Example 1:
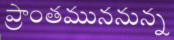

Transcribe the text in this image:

ప్రాంతముననున్న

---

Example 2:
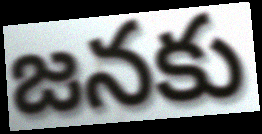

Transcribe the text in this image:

జనకు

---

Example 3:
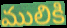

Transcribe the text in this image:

ములికి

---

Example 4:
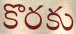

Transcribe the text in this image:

కొరకు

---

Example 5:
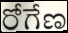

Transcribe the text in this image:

రోగేణ